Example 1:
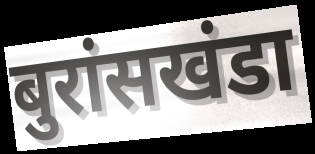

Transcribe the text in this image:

बुरांसखंडा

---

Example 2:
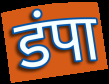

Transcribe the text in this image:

डंपा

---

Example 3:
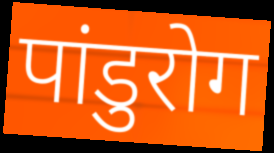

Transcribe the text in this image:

पांडुरोग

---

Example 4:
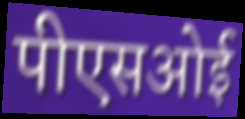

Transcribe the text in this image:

पीएसओई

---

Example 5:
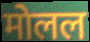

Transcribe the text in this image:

मोलल